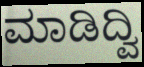
ಮಾಡಿದ್ವಿ